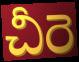
చీరె